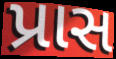
પ્રાસ